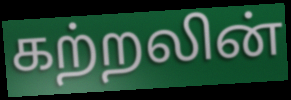
கற்றலின்